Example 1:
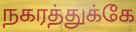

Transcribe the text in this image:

நகரத்துக்கே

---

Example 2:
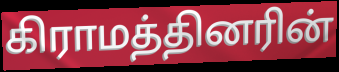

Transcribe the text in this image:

கிராமத்தினரின்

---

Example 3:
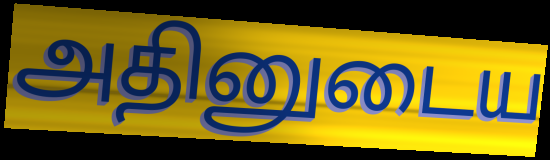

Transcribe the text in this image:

அதினுடைய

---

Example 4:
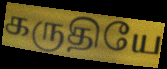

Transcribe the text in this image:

கருதியே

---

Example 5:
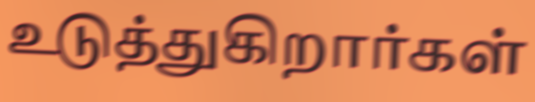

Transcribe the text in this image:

உடுத்துகிறார்கள்